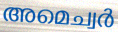
അമെച്വർ